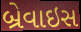
બ્રેવાઇસ